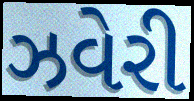
ઝવેરી